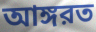
আঙ্গরত